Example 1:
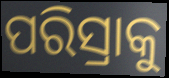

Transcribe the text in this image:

ପରିସ୍ରାକୁ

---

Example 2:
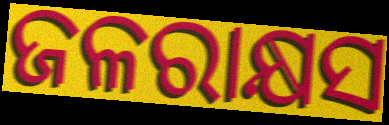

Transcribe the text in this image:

ଜଳରାକ୍ଷସ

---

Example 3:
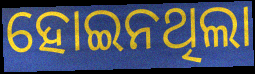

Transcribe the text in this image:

ହୋଇନଥିଲା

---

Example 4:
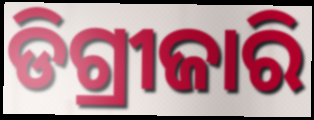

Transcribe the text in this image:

ଡିଗ୍ରୀଜାରି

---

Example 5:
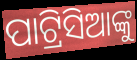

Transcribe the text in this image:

ପାଟ୍ରିସିଆଙ୍କୁ